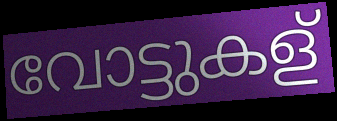
വോട്ടുകള്